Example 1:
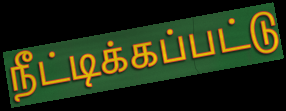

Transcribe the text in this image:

நீட்டிக்கப்பட்டு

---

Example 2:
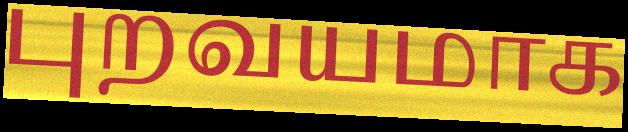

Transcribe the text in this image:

புறவயமாக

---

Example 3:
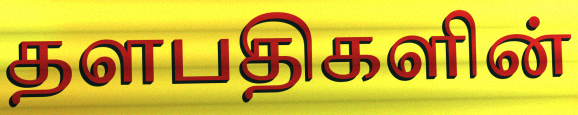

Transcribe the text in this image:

தளபதிகளின்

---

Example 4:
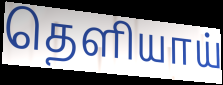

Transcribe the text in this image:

தெளியாய்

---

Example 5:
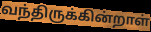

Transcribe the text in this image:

வந்திருக்கின்றாள்